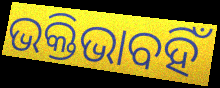
ଭକ୍ତିଭାବହିଁ